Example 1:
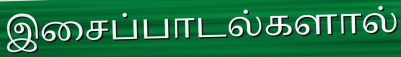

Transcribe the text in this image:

இசைப்பாடல்களால்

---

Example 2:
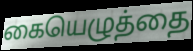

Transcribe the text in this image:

கையெழுத்தை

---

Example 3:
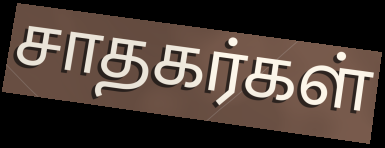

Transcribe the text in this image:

சாதகர்கள்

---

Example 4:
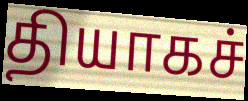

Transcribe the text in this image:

தியாகச்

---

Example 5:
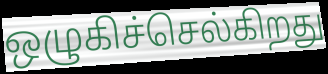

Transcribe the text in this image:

ஒழுகிச்செல்கிறது